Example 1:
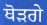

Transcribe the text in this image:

ਥੋੜਗੇ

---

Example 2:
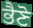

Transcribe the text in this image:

ਭੈਣੋ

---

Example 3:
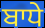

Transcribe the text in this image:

ਬਾਧੇ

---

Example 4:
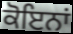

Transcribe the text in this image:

ਕੋਇਨਾਂ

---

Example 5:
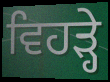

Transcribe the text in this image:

ਵਿਹੜ੍ਹੇ